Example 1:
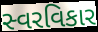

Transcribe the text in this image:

સ્વરવિકાર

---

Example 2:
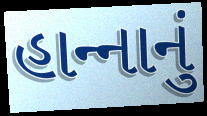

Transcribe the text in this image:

હાન્‍નાનું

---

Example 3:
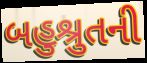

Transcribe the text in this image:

બહુશ્રુતની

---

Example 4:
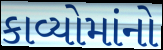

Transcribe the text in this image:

કાવ્યોમાંનો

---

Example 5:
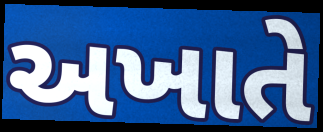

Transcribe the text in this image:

અખાતે